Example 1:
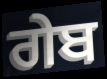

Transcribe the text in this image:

ਗੇਬ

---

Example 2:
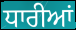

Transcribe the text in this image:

ਧਾਰੀਆਂ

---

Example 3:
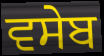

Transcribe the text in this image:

ਵਸੇਬ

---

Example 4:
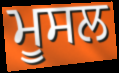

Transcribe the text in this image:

ਮੂਸਲ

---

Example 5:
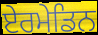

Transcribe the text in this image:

ਏਰਮੇਡਿਨ